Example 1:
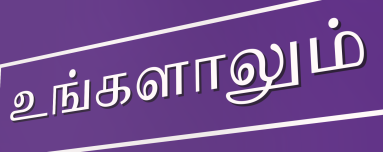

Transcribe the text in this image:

உங்களாலும்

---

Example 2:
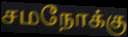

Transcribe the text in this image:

சமநோக்கு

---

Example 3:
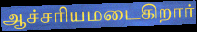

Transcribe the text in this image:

ஆச்சரியமடைகிறார்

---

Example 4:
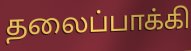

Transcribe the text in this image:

தலைப்பாக்கி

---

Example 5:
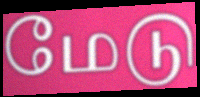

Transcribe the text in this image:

மேடு